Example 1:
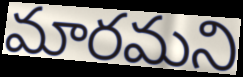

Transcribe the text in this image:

మారమని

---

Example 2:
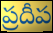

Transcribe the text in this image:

ప్రదీప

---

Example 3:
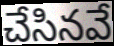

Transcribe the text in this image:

చేసినవే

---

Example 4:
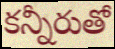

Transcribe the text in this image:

కన్నీరుతో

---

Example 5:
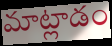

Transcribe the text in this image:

మాట్లాడం